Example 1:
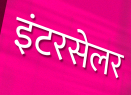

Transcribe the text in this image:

इंटरसेलर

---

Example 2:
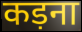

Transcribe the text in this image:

कड़ना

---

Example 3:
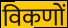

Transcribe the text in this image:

विकणों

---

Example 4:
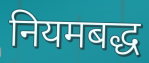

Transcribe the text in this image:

नियमबद्ध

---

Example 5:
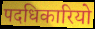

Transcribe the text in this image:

पदधिकारियो